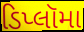
ડિપ્લૉમા